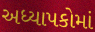
અધ્યાપકોમાં